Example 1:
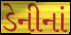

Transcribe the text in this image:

ડેનીનાં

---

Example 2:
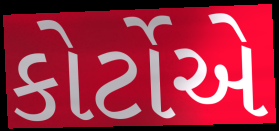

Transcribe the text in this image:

કોર્ટોએ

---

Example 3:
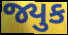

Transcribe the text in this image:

જ્યુક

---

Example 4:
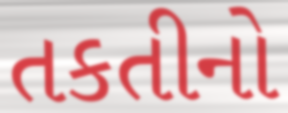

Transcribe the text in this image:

તકતીનો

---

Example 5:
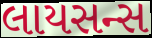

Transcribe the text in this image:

લાયસન્સ